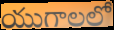
యుగాలలో